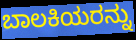
ಬಾಲಕಿಯರನ್ನು